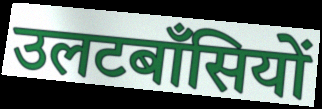
उलटबाँसियों